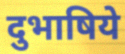
दुभाषिये